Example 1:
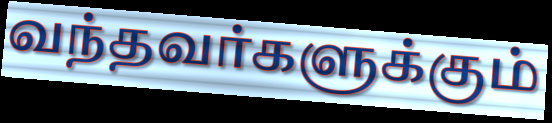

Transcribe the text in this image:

வந்தவர்களுக்கும்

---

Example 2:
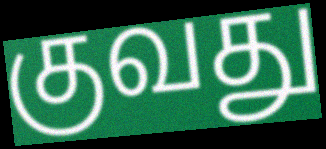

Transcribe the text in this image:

குவது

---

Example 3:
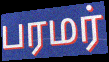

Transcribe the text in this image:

பரமர்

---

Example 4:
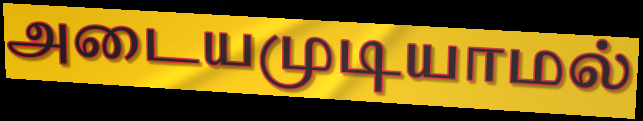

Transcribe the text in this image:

அடையமுடியாமல்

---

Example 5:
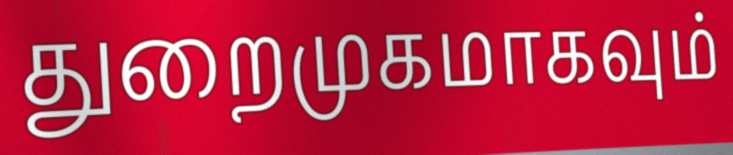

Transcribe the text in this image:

துறைமுகமாகவும்